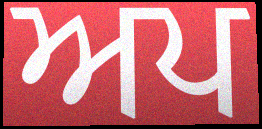
ਅਪ